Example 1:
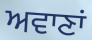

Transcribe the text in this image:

ਅਵਾਣਾਂ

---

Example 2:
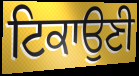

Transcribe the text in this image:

ਟਿਕਾਉਣੀ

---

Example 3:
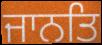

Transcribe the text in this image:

ਜਾਨਤਿ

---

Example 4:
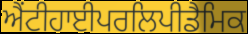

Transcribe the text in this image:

ਐਂਟੀਹਾਈਪਰਲਿਪੀਡੈਮਿਕ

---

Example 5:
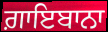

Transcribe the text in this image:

ਗ਼ਾਇਬਾਨਾ